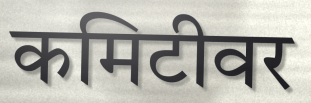
कमिटीवर